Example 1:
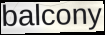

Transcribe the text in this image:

balcony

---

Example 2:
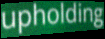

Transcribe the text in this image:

upholding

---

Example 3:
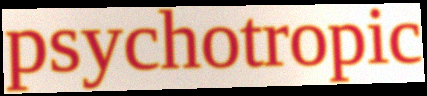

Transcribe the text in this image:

psychotropic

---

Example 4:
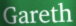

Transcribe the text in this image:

Gareth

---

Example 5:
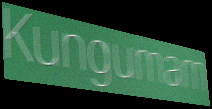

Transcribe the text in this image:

Kungumam